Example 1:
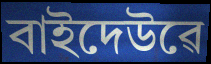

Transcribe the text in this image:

বাইদেউৱে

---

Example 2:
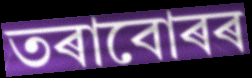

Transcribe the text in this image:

তৰাবোৰৰ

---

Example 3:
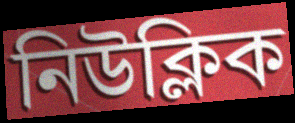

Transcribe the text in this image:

নিউক্লিক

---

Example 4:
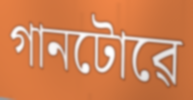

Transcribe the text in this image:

গানটোৱে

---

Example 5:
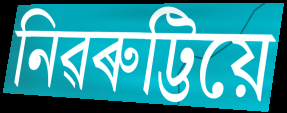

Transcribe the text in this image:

নিৱৰুট্টিয়ে